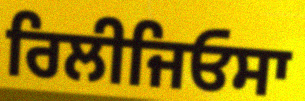
ਰਿਲੀਜਿਓਸਾ